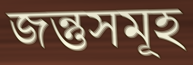
জন্তুসমূহ